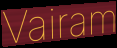
Vairam